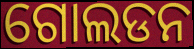
ଗୋଲଡନ